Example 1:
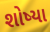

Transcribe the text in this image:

શોષ્યા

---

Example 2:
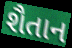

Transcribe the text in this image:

શૈતાન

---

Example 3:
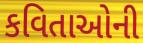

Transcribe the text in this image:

કવિતાઓની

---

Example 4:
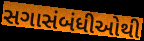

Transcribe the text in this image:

સગાસંબંધીઓથી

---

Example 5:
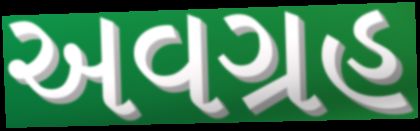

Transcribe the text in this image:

અવગ્રહ